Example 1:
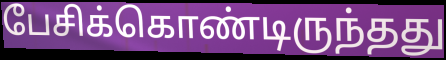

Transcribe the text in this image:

பேசிக்கொண்டிருந்தது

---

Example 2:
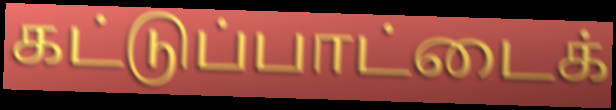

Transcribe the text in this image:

கட்டுப்பாட்டைக்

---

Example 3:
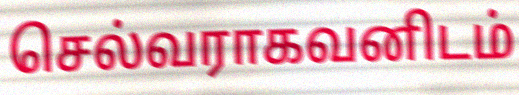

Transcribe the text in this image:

செல்வராகவனிடம்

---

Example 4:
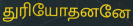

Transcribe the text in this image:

துரியோதனனே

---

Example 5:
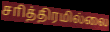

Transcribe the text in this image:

சரித்திரமில்லை